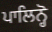
ਪਾਲਿਨ੍ਹੋ